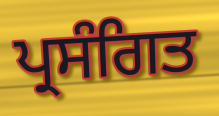
ਪ੍ਰਸੰਗਿਤ